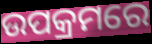
ଉପକ୍ରମରେ